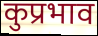
कुप्रभाव